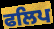
ਫਲਿਪ